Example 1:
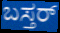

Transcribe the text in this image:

ಬಸ್ತರ್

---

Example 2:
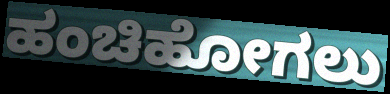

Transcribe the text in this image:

ಹಂಚಿಹೋಗಲು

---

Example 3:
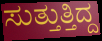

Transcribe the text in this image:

ಸುತ್ತುತ್ತಿದ್ದ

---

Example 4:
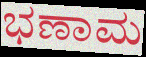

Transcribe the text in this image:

ಭಣಾಮ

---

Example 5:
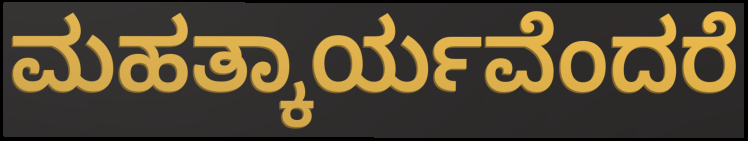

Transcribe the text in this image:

ಮಹತ್ಕಾರ್ಯವೆಂದರೆ